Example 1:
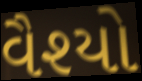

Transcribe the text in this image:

વૈશ્યો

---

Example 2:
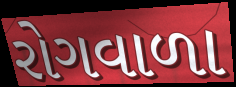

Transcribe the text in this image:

રોગવાળા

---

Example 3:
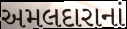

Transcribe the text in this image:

અમલદારાનાં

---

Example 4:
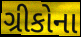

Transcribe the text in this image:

ગ્રીકોના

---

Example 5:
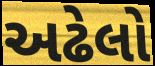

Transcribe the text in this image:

અઢેલો